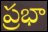
ప్రభా